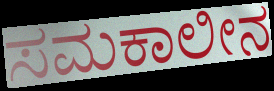
ಸಮಕಾಲೀನ